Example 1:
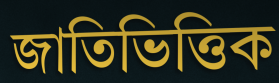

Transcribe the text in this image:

জাতিভিত্তিক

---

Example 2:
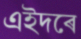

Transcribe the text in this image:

এইদৰে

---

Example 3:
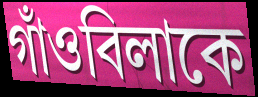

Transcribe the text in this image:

গাঁওবিলাকে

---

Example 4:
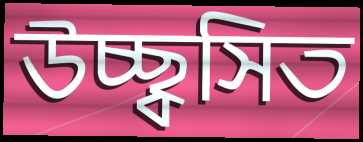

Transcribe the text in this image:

উচ্ছ্বসিত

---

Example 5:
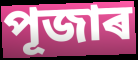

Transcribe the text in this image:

পূজাৰ